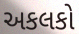
અકલકો